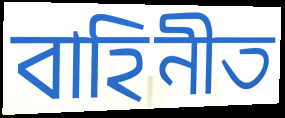
বাহিনীত